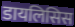
डायलिसिस